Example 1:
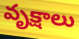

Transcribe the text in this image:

వృక్షాలు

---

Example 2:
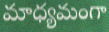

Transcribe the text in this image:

మాధ్యమంగా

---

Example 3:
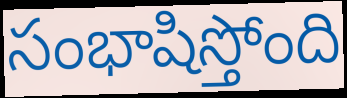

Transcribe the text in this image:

సంభాషిస్తోంది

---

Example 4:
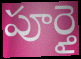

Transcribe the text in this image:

పూర్తై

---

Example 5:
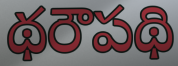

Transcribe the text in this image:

థరౌపథి